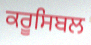
ਕਰੂਸਿਬਲ